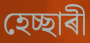
হেচ্ছাৰী